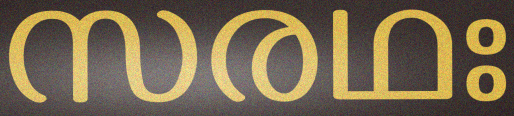
സരഥഃ